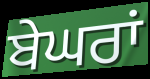
ਬੇਘਰਾਂ